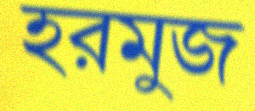
হরমুজ